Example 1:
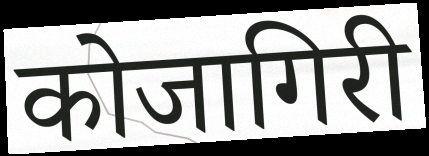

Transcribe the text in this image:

कोजागिरी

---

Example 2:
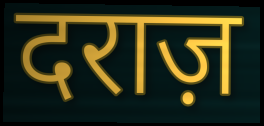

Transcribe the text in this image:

दराज़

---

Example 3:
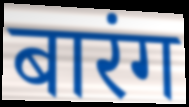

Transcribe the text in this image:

बारंग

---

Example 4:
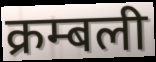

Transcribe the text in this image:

क्रम्बली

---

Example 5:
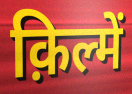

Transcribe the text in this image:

क़िल्में